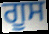
ਗੂਸ